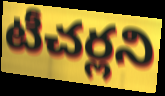
టీచర్లని